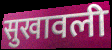
सुखावली